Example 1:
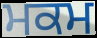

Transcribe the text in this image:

ਮਕਮ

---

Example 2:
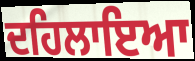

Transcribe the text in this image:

ਦਹਿਲਾਇਆ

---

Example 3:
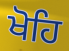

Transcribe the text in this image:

ਖੋਹਿ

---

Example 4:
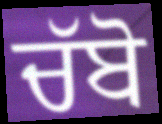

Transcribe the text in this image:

ਚੱਬੋ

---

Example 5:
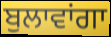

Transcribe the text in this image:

ਬੁਲਾਵਾਂਗਾ